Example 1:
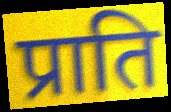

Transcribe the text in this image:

प्राति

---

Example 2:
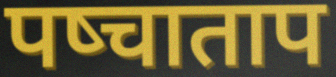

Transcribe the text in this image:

पष्चाताप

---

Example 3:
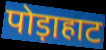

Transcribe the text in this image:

पोड़ाहाट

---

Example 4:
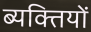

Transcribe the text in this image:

ब्यक्तियों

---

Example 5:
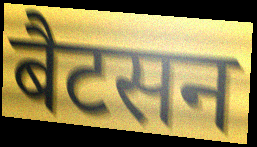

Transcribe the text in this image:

बैटसन